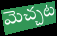
మెచ్చట